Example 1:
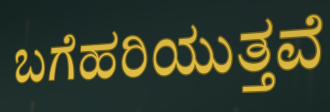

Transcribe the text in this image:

ಬಗೆಹರಿಯುತ್ತವೆ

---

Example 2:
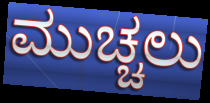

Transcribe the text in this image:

ಮುಚ್ಚಲು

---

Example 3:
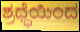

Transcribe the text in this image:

ಶ್ರಧ್ಧೆಯಿಂದ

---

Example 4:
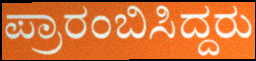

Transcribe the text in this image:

ಪ್ರಾರಂಬಿಸಿದ್ದರು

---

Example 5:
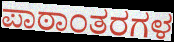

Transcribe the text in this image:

ಪಾಠಾಂತರಗಳ